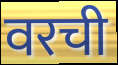
वरची